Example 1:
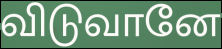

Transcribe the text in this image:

விடுவானே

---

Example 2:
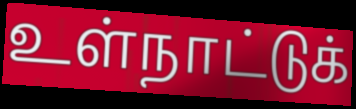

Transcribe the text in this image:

உள்நாட்டுக்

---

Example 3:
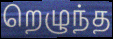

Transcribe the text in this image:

றெழுந்த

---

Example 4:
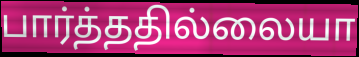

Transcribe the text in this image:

பார்த்ததில்லையா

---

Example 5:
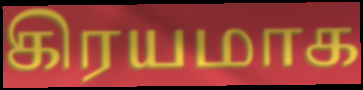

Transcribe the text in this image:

கிரயமாக